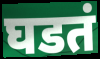
घडतं